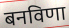
बनविणा